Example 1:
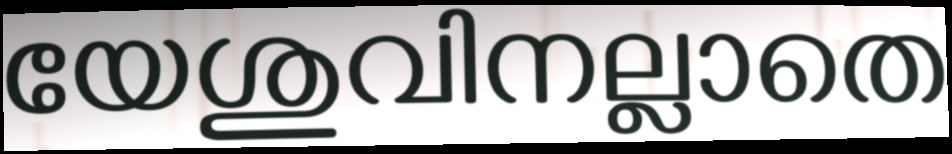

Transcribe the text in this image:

യേശുവിനല്ലാതെ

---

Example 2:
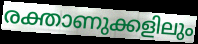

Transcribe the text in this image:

രക്താണുക്കളിലും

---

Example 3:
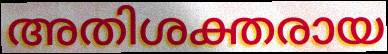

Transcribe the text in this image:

അതിശക്തരായ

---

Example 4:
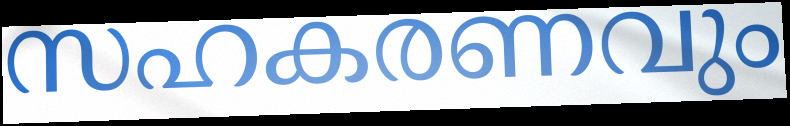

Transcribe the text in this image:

സഹകരണവും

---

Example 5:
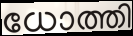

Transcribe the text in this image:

ധോത്തി